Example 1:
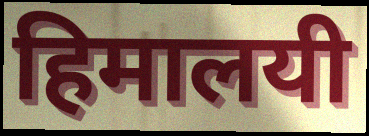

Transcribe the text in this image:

हिमालयी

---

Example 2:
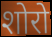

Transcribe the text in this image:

शोरो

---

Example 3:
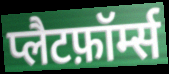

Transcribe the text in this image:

प्लैटफ़ॉर्म्स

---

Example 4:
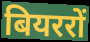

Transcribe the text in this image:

बियररों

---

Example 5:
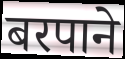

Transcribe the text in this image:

बरपाने